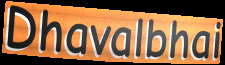
Dhavalbhai